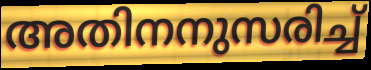
അതിനനുസരിച്ച്